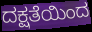
ದಕ್ಷತೆಯಿಂದ